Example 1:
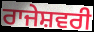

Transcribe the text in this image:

ਰਾਜੇਸ਼ਵਰੀ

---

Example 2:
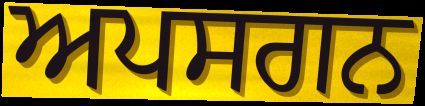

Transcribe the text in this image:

ਅਪਸਗਨ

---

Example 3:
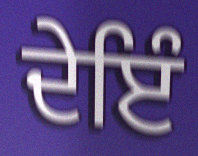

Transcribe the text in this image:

ਦੇਇੰ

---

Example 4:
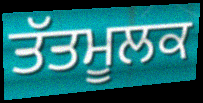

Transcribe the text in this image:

ਤੱਤਮੂਲਕ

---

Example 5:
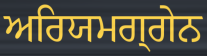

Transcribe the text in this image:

ਅਰਿਯਮਗ੍ਗੇਨ